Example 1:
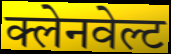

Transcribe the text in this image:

क्लेनवेल्ट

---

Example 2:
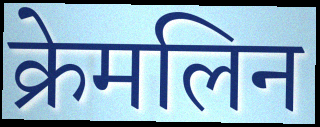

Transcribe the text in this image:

क्रेमलिन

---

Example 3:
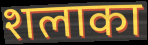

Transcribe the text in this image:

शलाका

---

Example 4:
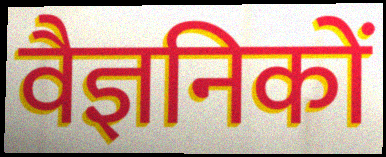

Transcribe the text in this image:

वैज्ञनिकों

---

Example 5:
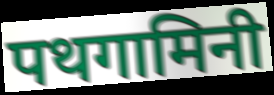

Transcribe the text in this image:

पथगामिनी